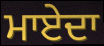
ਮਾਏਦਾ